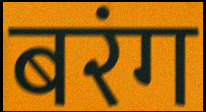
बरंग